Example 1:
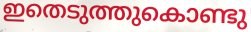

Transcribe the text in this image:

ഇതെടുത്തുകൊണ്ടു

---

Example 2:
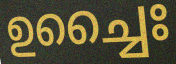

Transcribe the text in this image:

ഉച്ചൈഃ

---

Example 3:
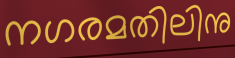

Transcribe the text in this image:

നഗരമതിലിനു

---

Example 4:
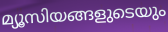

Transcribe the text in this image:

മ്യൂസിയങ്ങളുടെയും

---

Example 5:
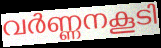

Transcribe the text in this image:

വർണ്ണനകൂടി